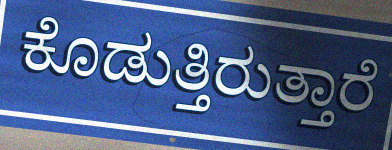
ಕೊಡುತ್ತಿರುತ್ತಾರೆ